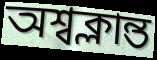
অশ্বক্লান্ত